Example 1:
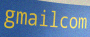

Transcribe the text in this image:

gmailcom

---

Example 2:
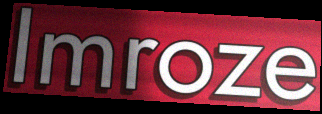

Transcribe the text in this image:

Imroze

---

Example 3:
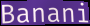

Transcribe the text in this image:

Banani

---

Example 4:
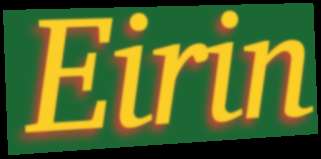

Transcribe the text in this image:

Eirin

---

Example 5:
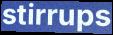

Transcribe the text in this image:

stirrups